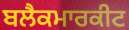
ਬਲੈਕਮਾਰਕੀਟ